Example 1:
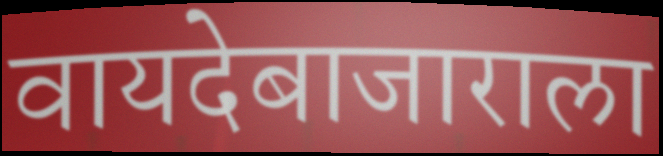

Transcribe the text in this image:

वायदेबाजाराला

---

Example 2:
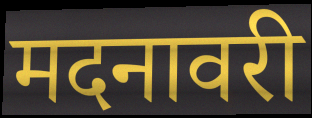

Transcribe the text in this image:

मदनावरी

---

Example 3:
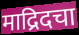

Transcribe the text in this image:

माद्रिदचा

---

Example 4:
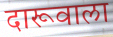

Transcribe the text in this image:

दारूवाला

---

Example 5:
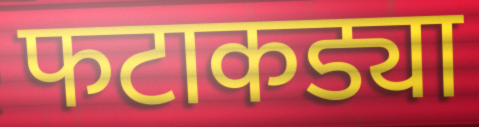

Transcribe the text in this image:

फटाकड्या